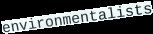
environmentalists